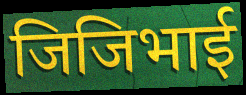
जिजिभाई